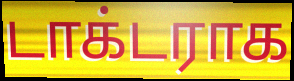
டாக்டராக